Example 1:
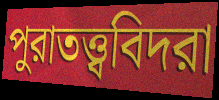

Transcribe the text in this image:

পুরাতত্ত্ববিদরা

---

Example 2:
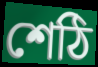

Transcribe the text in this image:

শেঠি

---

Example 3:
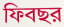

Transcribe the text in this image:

ফিবছর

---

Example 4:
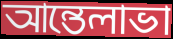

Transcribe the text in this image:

আন্তেলাভা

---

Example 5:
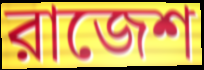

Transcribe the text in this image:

রাজেশ